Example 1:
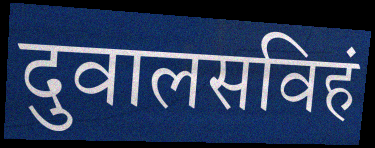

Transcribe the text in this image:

दुवालसविहं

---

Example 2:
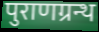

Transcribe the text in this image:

पुराणग्रन्थ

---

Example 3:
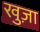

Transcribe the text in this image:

खुज़ा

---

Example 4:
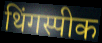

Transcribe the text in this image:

थिंगस्पीक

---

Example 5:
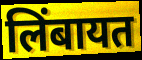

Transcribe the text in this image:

लिंबायत